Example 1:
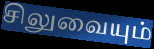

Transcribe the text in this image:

சிலுவையும்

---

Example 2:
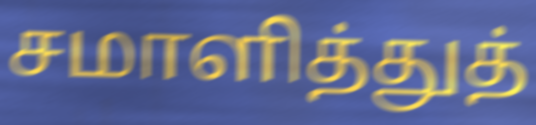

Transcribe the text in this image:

சமாளித்துத்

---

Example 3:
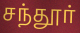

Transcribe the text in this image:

சந்தூர்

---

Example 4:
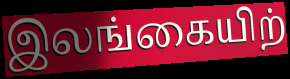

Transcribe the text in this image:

இலங்கையிற்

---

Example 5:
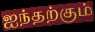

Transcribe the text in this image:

ஐந்தற்கும்